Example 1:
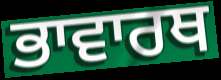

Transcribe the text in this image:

ਭਾਵਾਰਥ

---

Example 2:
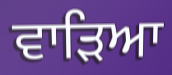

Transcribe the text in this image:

ਵਾੜਿਆ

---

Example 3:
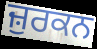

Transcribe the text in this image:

ਜ਼ੁਰਕਨ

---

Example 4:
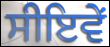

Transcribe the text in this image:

ਸੀਇਵੇਂ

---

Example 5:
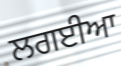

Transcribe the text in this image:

ਲਗਈਆ